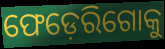
ଫେଡ଼େରିଗୋକୁ